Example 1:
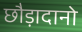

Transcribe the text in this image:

छौड़ादानो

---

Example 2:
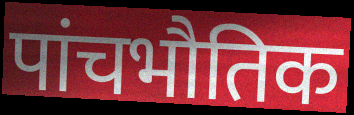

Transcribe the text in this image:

पांचभौतिक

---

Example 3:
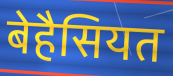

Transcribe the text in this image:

बेहैसियत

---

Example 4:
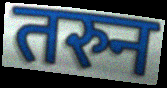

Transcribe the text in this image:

तरुन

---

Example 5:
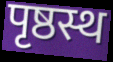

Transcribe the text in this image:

पृष्ठस्थ